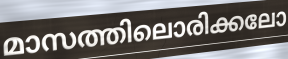
മാസത്തിലൊരിക്കലോ